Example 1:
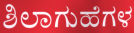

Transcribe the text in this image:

ಶಿಲಾಗುಹೆಗಳ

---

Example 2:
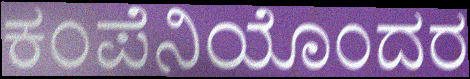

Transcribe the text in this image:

ಕಂಪೆನಿಯೊಂದರ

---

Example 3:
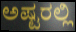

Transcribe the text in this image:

ಅಷ್ಟರಲ್ಲಿ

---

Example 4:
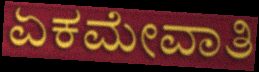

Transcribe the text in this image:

ಏಕಮೇವಾತಿ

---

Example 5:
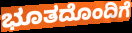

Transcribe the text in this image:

ಭೂತದೊಂದಿಗೆ